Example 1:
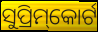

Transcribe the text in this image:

ସୁପ୍ରିମ୍‌କୋର୍ଟ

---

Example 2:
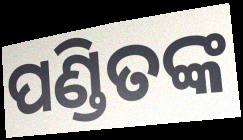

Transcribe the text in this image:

ପଣ୍ଡିତଙ୍କ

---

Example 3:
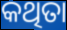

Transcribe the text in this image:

କଥିତା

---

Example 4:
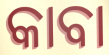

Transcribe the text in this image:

କାବା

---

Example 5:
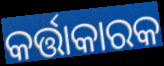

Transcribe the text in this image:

କର୍ତ୍ତାକାରକ